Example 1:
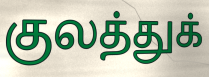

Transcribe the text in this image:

குலத்துக்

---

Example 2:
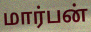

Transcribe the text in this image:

மார்பன்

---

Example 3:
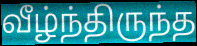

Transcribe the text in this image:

வீழ்ந்திருந்த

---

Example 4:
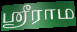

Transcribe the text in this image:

ஸ்ரீராம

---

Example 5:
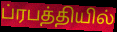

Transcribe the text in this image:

ப்ரபத்தியில்